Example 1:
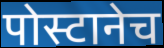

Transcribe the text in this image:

पोस्टानेच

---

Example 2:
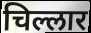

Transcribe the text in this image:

चिल्लार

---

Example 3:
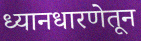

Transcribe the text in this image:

ध्यानधारणेतून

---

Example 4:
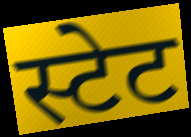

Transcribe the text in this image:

स्टेट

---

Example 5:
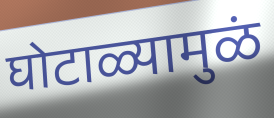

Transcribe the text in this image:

घोटाळ्यामुळं